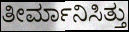
ತೀರ್ಮಾನಿಸಿತ್ತು